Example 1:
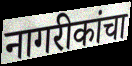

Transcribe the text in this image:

नागरीकांचा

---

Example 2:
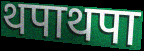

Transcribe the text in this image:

थपाथपा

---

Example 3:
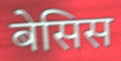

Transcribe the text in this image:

बेसिस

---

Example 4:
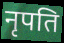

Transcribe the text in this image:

नृपति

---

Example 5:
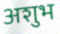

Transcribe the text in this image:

अशुभ